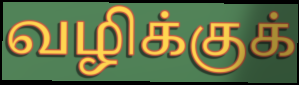
வழிக்குக்